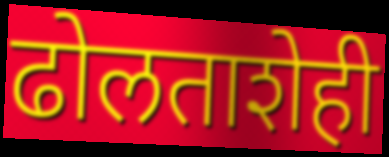
ढोलताशेही